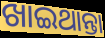
ଖାଇଥାନ୍ତା